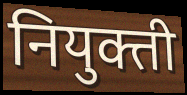
नियुक्ती